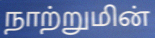
நாற்றுமின்